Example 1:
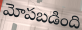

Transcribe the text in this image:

మోపబడింది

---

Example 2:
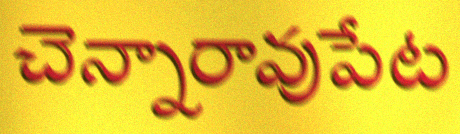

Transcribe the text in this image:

చెన్నారావుపేట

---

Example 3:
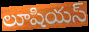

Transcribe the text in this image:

లూషియస్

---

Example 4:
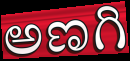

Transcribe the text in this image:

అణగి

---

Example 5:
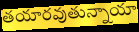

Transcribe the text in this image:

తయారవుతున్నాయా